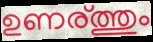
ഉണര്ത്തും